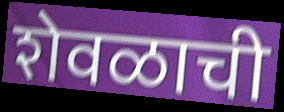
शेवळाची